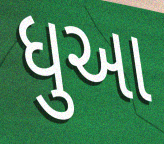
ધુઆ